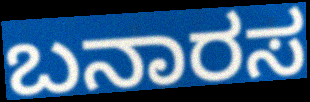
ಬನಾರಸ